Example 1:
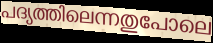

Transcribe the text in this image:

പദ്യത്തിലെന്നതുപോലെ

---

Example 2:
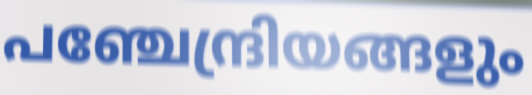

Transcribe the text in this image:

പഞ്ചേന്ദ്രിയങ്ങളും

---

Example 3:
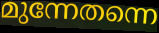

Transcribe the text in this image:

മുന്നേതന്നെ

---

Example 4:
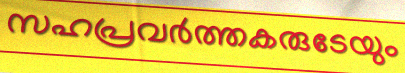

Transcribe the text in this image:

സഹപ്രവർത്തകരുടേയും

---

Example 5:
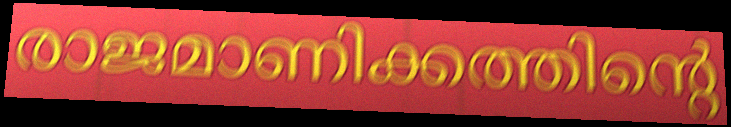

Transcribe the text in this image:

രാജമാണിക്കത്തിന്റെ